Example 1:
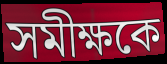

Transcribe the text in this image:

সমীক্ষকে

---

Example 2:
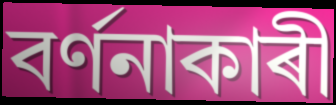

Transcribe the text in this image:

বৰ্ণনাকাৰী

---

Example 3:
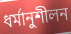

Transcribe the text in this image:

ধৰ্মানুশীলন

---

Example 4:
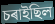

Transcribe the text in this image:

চৰাইছিল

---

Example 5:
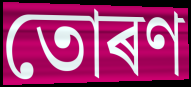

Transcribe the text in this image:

তোৰণ